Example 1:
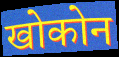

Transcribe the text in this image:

खोकोन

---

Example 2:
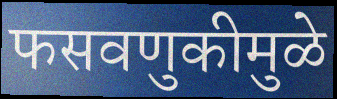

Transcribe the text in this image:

फसवणुकीमुळे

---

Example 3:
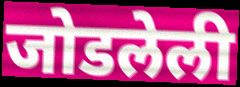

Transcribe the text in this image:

जोडलेली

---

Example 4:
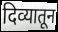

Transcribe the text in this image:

दिव्यातून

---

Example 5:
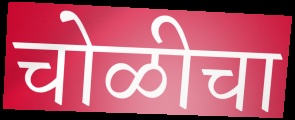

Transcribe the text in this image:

चोळीचा